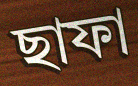
ছাফা